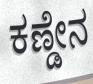
ಕಣ್ಡೇನ